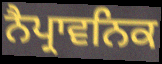
ਨੈਪ੍ਰਾਵਨਿਕ